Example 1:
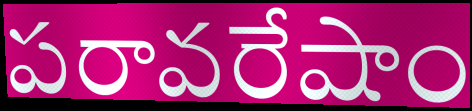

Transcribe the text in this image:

పరావరేషాం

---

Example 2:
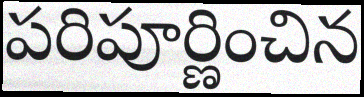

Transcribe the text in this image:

పరిపూర్ణించిన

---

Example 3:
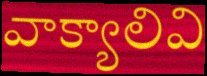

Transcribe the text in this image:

వాక్యాలివి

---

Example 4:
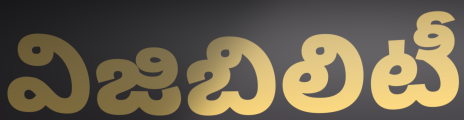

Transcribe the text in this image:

విజిబిలిటీ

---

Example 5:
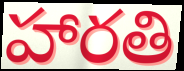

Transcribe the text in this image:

హారతి